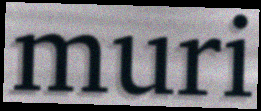
muri